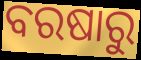
ବରଷାରୁ